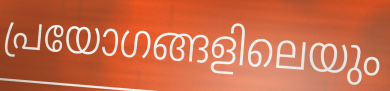
പ്രയോഗങ്ങളിലെയും